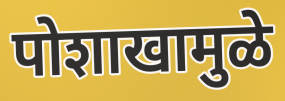
पोशाखामुळे